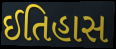
ઈતિહાસ